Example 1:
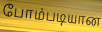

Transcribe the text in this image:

போம்படியான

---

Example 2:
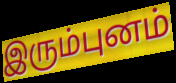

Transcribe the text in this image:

இரும்புனம்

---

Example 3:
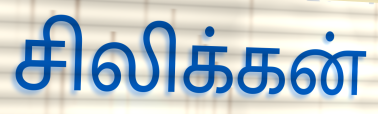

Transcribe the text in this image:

சிலிக்கன்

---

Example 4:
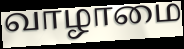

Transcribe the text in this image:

வாழாமை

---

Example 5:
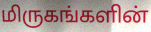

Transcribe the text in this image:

மிருகங்களின்